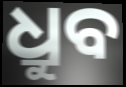
ଧ୍ରୁବ